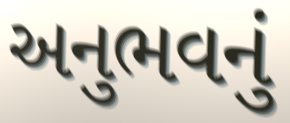
અનુભવનું